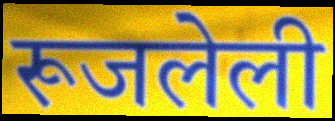
रूजलेली